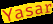
Yasar